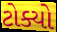
ટોક્યો